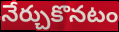
నేర్చుకొనటం